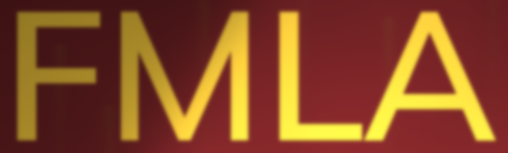
FMLA